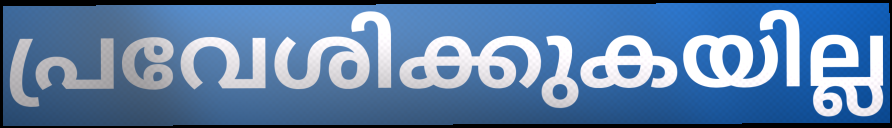
പ്രവേശിക്കുകയില്ല